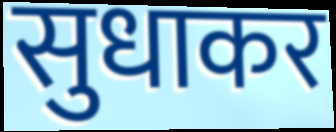
सुधाकर